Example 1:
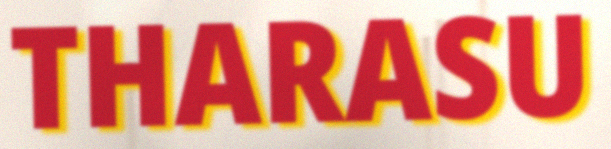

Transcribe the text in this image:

THARASU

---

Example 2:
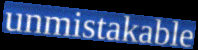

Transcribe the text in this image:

unmistakable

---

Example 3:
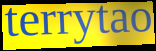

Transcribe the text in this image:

terrytao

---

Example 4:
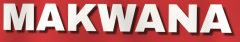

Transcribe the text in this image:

MAKWANA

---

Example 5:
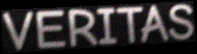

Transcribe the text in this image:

VERITAS